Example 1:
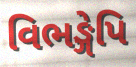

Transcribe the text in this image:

વિભઙ્ગેપિ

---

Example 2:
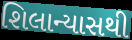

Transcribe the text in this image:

શિલાન્યાસથી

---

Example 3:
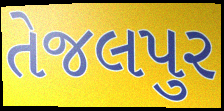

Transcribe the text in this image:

તેજલપુર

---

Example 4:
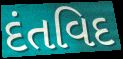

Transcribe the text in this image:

દંતવિદ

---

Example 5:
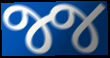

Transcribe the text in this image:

જ્જ